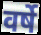
वर्षे